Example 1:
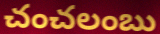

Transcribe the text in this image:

చంచలంబు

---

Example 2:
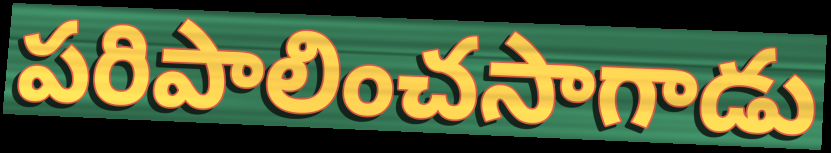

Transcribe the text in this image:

పరిపాలించసాగాడు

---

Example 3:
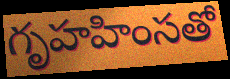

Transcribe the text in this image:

గృహహింసతో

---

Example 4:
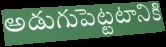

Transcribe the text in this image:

అడుగుపెట్టటానికి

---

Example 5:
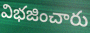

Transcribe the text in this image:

విభజించారు